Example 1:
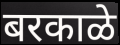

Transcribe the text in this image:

बरकाळे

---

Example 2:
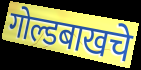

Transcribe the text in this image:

गोल्डबाखचे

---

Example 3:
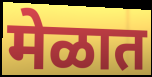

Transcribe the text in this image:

मेळात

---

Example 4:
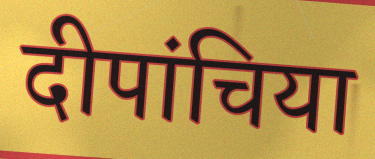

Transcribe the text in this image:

दीपांचिया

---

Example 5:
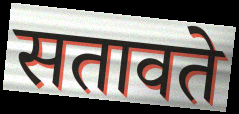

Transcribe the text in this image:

सतावते